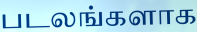
படலங்களாக